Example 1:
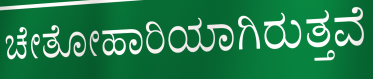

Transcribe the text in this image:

ಚೇತೋಹಾರಿಯಾಗಿರುತ್ತವೆ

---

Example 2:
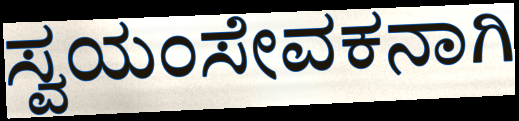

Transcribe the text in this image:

ಸ್ವಯಂಸೇವಕನಾಗಿ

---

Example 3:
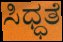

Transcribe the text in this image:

ಸಿಧ್ಧತೆ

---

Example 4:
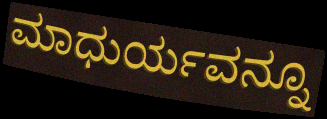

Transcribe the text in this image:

ಮಾಧುರ್ಯವನ್ನೂ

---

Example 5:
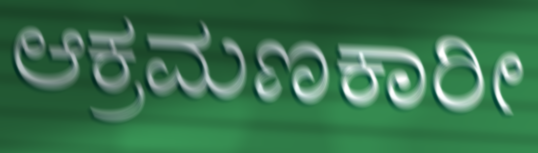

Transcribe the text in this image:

ಆಕ್ರಮಣಕಾರೀ